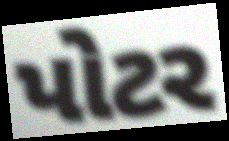
પોટર